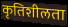
कृतिशीलता